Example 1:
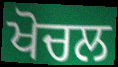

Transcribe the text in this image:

ਖੋਚਲ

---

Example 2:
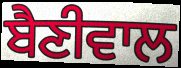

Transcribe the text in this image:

ਬੈਣੀਵਾਲ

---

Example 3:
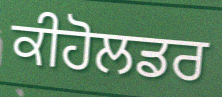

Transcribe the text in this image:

ਕੀਹੋਲਡਰ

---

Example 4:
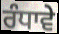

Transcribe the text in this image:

ਰੰਧਾਵੇ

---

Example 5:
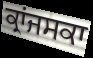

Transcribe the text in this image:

ਕ੍ਰਾਂਜਸਕਾ